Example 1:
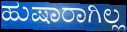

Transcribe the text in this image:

ಹುಷಾರಾಗಿಲ್ಲ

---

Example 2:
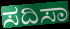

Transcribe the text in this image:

ಸದಿಸಾ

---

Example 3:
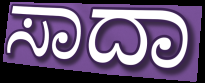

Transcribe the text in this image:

ಸಾದಾ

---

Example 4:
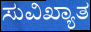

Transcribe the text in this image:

ಸುವಿಖ್ಯಾತ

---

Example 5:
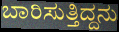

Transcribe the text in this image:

ಬಾರಿಸುತ್ತಿದ್ದನು